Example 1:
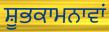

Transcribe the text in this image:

ਸ਼ੂਭਕਾਮਨਾਵਾਂ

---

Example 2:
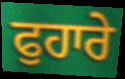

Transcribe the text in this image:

ਫੁਹਾਰੇ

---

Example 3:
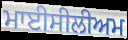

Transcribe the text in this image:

ਮਾਈਸੀਲੀਅਮ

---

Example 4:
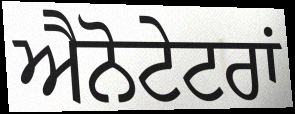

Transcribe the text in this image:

ਐਨੋਟੇਟਰਾਂ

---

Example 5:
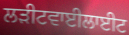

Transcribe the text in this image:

ਲੜੀਟਵਾਈਲਾਈਟ